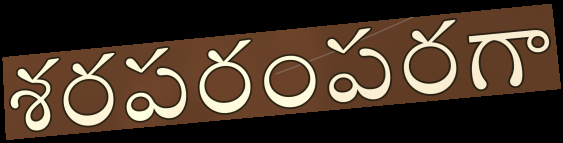
శరపరంపరగా